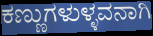
ಕಣ್ಣುಗಳುಳ್ಳವನಾಗಿ